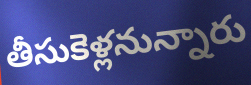
తీసుకెళ్లనున్నారు